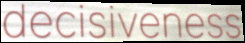
decisiveness